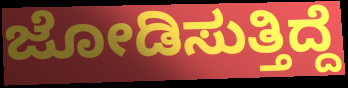
ಜೋಡಿಸುತ್ತಿದ್ದೆ